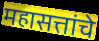
महासत्तांचे